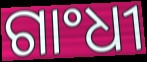
ଗାଂଧୀ